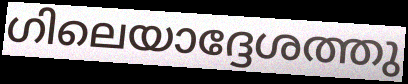
ഗിലെയാദ്ദേശത്തു